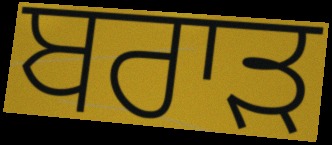
ਬਰਾਡ਼